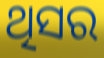
ଥିସର